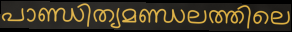
പാണ്ഡിത്യമണ്ഡലത്തിലെ